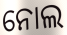
ନୋଲ